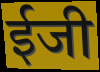
ईजी